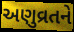
અણુવ્રતને